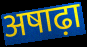
अषाढ़ा